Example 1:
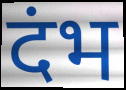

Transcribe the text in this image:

दंभ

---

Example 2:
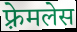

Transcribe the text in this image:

फ़्रेमलेस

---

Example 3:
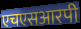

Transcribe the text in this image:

एचएसआरपी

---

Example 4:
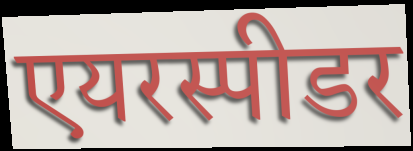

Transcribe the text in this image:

एयरस्पीडर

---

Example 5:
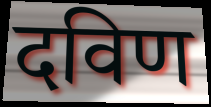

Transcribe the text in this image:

दविण